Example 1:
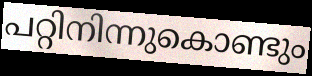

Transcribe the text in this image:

പറ്റിനിന്നുകൊണ്ടും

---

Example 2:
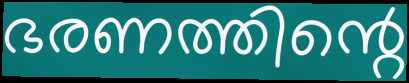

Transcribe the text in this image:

ഭരണത്തിന്റെ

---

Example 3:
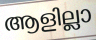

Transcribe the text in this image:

ആളില്ലാ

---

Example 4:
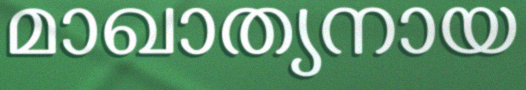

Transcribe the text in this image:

മാഖാത്യനായ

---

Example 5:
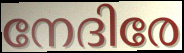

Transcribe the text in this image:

നേദിരേ